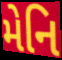
મેનિ